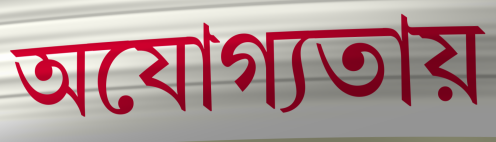
অযোগ্যতায়